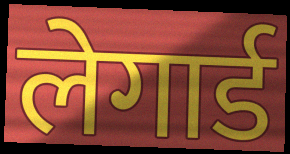
लेगार्ड